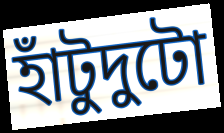
হাঁটুদুটো